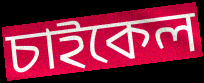
চাইকেল